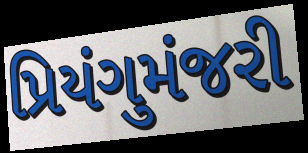
પ્રિયંગુમંજરી